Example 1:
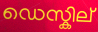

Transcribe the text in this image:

ഡെസ്കില്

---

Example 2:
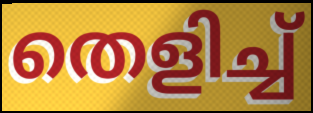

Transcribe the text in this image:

തെളിച്ച്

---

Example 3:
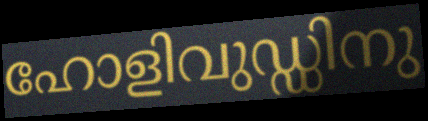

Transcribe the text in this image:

ഹോളിവുഡ്ഡിനു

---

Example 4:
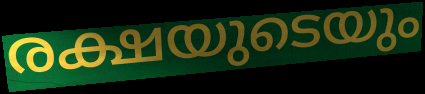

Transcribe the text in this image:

രക്ഷയുടെയും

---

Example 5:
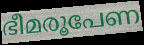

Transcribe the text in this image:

ഭീമരൂപേണ